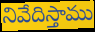
నివేదిస్తాము